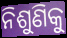
ନିଶୁଣିକୁ